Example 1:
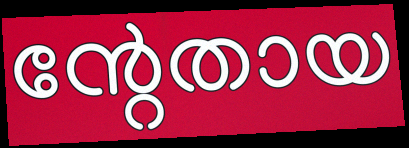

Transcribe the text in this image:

ന്റേതായ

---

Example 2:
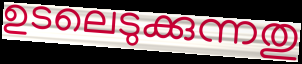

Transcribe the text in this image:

ഉടലെടുക്കുന്നതു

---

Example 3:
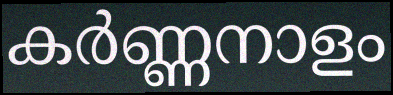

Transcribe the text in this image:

കർണ്ണനാളം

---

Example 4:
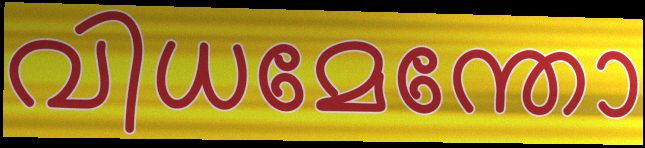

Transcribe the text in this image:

വിധമേന്തോ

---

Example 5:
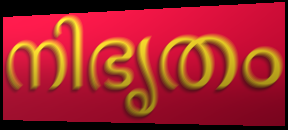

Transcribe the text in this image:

നിഭൃതം